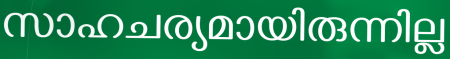
സാഹചര്യമായിരുന്നില്ല